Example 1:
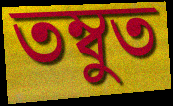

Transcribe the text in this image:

তম্বুত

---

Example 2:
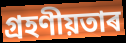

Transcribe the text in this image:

গ্ৰহণীয়তাৰ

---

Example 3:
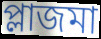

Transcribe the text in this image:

প্লাজমা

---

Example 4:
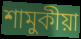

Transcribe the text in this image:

শামুকীয়া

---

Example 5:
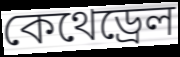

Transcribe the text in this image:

কেথেড্ৰেল